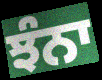
ਝੰਨਾ